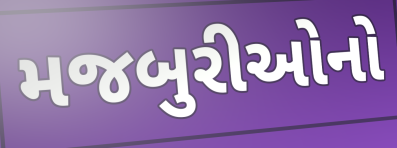
મજબુરીઓનો